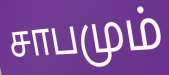
சாபமும்